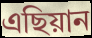
এছিয়ান